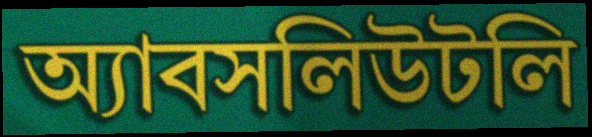
অ্যাবসলিউটলি